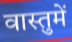
वास्तुमें